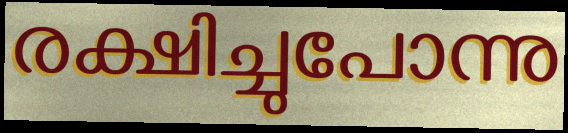
രക്ഷിച്ചുപോന്നു